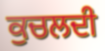
ਕੁਚਲਦੀ